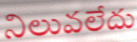
నిలువలేదు